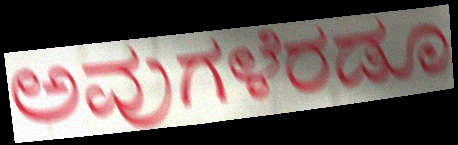
ಅವುಗಳೆರಡೂ